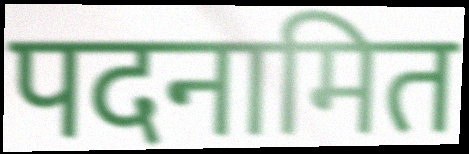
पदनामित